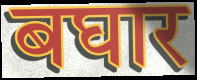
बघार